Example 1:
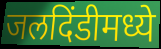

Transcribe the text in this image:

जलदिंडीमध्ये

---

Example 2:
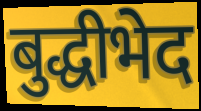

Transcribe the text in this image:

बुद्धीभेद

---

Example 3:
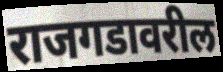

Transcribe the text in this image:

राजगडावरील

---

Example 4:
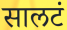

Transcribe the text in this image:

सालटं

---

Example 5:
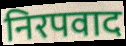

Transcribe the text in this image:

निरपवाद